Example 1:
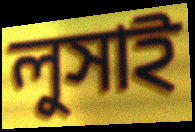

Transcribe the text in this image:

লুসাই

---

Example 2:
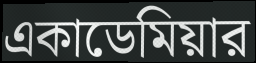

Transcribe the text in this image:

একাডেমিয়ার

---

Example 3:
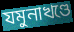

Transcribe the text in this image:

যমুনাখণ্ডে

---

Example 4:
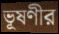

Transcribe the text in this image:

ভূষণীর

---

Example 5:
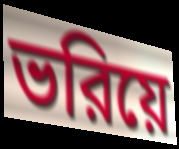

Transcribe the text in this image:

ভরিয়ে